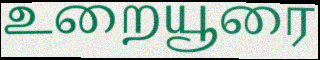
உறையூரை